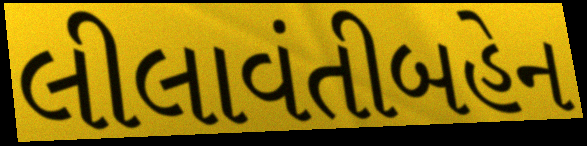
લીલાવંતીબહેન